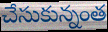
చేసుకున్నంత